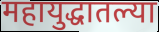
महायुद्धातल्या